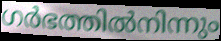
ഗർഭത്തിൽനിന്നും